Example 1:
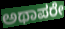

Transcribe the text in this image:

ಅಥಾಪರೇ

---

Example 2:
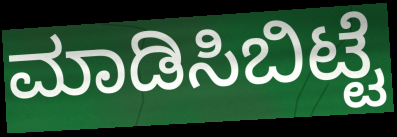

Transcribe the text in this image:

ಮಾಡಿಸಿಬಿಟ್ಟೆ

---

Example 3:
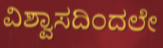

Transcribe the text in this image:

ವಿಶ್ವಾಸದಿಂದಲೇ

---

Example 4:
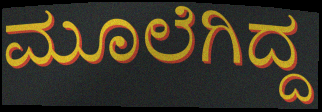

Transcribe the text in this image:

ಮೂಲೆಗಿದ್ದ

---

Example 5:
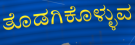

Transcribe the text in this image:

ತೊಡಗಿಕೊಳ್ಳುವ